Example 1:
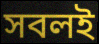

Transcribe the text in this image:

সবলই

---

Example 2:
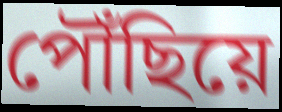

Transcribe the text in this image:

পৌঁছিয়ে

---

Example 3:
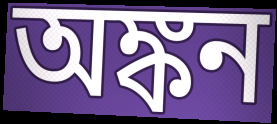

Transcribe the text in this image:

অঙ্কন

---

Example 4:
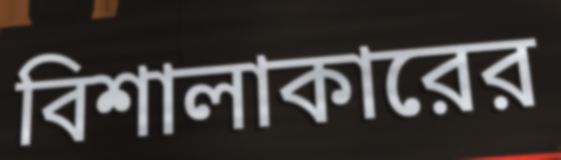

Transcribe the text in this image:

বিশালাকারের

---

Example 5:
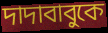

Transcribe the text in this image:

দাদাবাবুকে